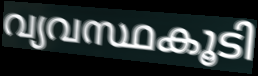
വ്യവസ്ഥകൂടി